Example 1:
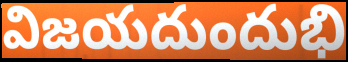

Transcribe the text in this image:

విజయదుందుభి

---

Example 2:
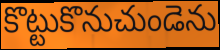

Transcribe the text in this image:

కొట్టుకొనుచుండెను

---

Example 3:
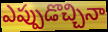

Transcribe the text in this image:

ఎప్పుడొచ్చినా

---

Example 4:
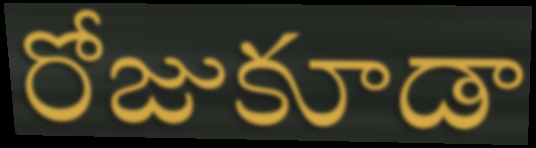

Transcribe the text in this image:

రోజుకూడా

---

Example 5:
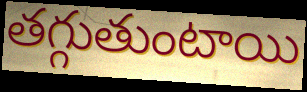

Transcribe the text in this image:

తగ్గుతుంటాయి